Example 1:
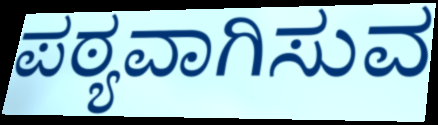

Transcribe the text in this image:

ಪಠ್ಯವಾಗಿಸುವ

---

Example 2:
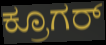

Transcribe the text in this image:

ಕ್ರೂಗರ್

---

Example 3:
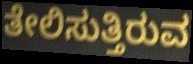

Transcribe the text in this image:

ತೇಲಿಸುತ್ತಿರುವ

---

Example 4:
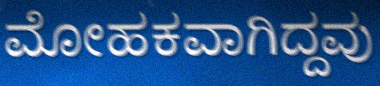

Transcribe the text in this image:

ಮೋಹಕವಾಗಿದ್ದವು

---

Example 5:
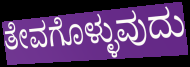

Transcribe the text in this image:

ತೇವಗೊಳ್ಳುವುದು